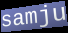
samju